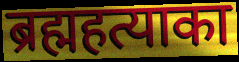
ब्रह्महत्याका